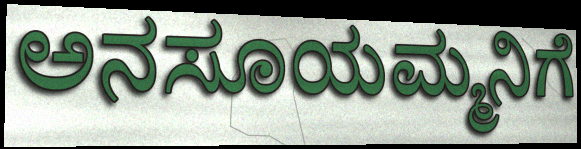
ಅನಸೂಯಮ್ಮನಿಗೆ